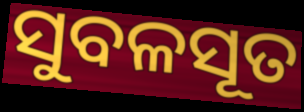
ସୁବଳସୂତ